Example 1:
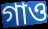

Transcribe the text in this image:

গাও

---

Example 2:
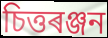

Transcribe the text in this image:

চিত্তৰঞ্জন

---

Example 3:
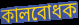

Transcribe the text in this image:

কালবোধক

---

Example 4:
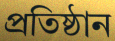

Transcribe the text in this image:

প্ৰতিষ্ঠান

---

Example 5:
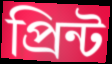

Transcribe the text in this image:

প্ৰিন্ট